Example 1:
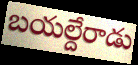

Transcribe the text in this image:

బయల్దేరాడు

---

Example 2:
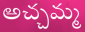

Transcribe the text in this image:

అచ్చమ్మ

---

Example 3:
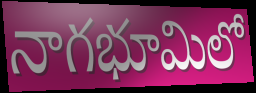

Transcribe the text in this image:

నాగభూమిలో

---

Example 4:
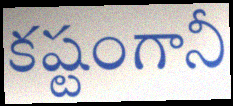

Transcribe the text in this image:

కష్టంగానీ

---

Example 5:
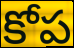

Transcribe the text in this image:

కోప